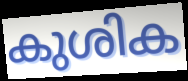
കുശിക